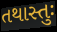
તથાસ્તુઃ